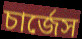
চার্জেস